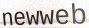
newweb